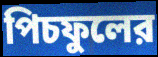
পিচফুলের